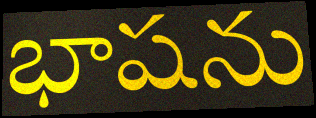
భాషను